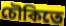
চৌকিতে